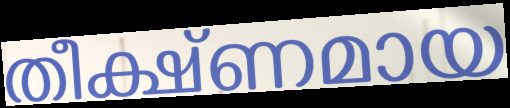
തീക്ഷ്‌ണമായ